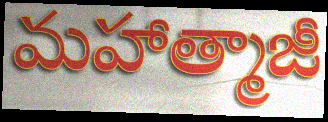
మహాత్మాజీ